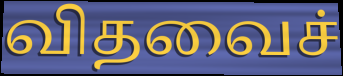
விதவைச்